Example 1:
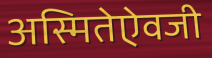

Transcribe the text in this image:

अस्मितेऐवजी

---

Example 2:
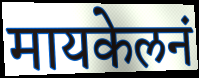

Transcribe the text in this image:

मायकेलनं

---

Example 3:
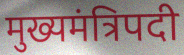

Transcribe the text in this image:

मुख्यमंत्रिपदी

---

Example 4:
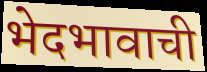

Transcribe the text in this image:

भेदभावाची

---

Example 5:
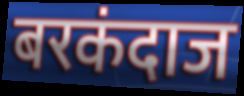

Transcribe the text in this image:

बरकंदाज